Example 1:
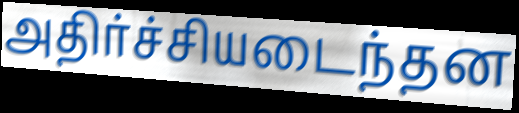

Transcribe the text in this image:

அதிர்ச்சியடைந்தன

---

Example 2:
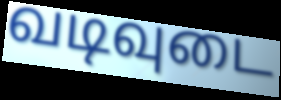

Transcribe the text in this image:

வடிவுடை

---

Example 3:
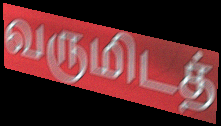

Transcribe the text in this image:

வருமிடத்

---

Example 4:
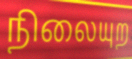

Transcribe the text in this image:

நிலையுற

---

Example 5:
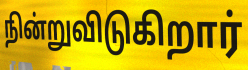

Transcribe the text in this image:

நின்றுவிடுகிறார்